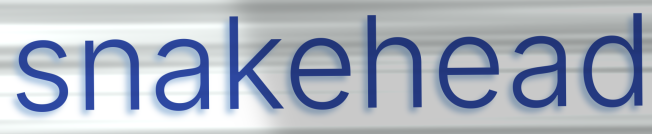
snakehead